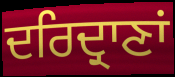
ਦਰਿਦ੍ਰਾਣਾਂ